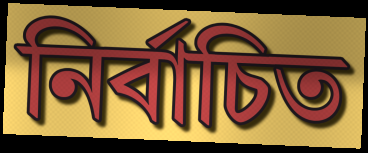
নির্বাচিত